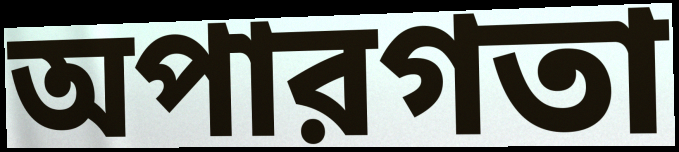
অপারগতা